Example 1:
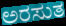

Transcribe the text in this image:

ಅರಸುತ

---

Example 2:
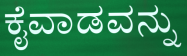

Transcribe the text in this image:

ಕೈವಾಡವನ್ನು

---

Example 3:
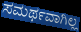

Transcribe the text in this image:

ಸಮರ್ಥವಾಗಿಲ್ಲ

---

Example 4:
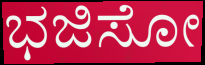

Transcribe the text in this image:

ಭಜಿಸೋ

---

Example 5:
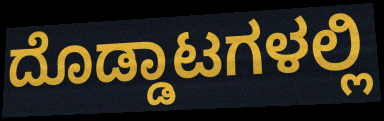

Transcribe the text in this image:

ದೊಡ್ಡಾಟಗಳಲ್ಲಿ